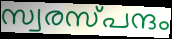
സ്വരസ്പന്ദം